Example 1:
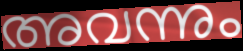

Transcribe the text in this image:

അവന്നും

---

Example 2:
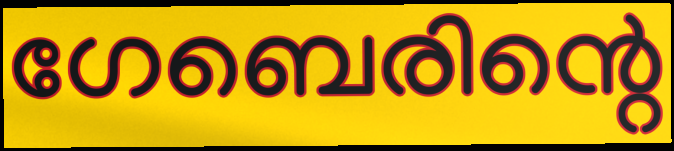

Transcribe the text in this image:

ഗേബെരിന്റെ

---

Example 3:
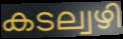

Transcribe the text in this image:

കടല്വഴി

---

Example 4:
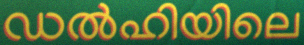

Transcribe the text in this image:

ഡൽഹിയിലെ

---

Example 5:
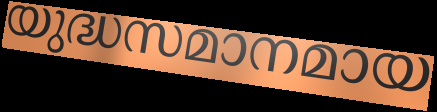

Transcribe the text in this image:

യുദ്ധസമാനമായ